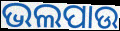
ଭଲପାଉ